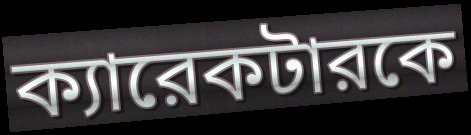
ক্যারেকটারকে